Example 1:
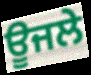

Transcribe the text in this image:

ਊਜਲੇ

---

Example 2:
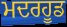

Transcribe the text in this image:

ਮਦਰਹੂਡ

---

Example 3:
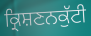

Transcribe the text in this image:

ਕ੍ਰਿਸ਼ਣਨਕੁੱਟੀ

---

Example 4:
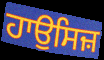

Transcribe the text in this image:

ਹਾਉਸਿਜ਼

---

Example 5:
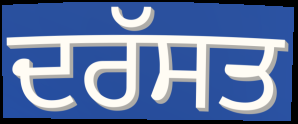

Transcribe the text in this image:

ਦਰੱਸਤ